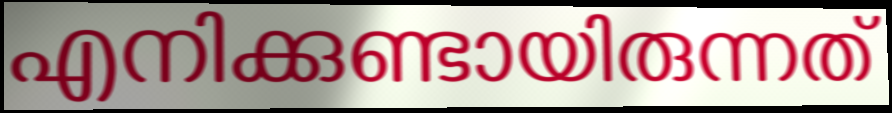
എനിക്കുണ്ടായിരുന്നത്